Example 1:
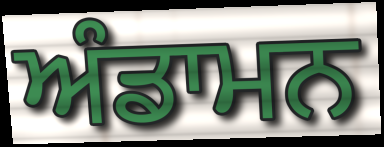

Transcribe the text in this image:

ਅੰਡਾਮਨ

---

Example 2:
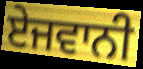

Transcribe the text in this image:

ਏਜਵਾਨੀ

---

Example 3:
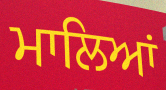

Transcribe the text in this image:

ਮਾਲਿਆਂ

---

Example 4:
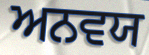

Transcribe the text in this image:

ਅਨਵਯ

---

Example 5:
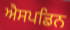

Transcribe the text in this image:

ਐਸਪਡਿਨ